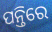
ପନ୍ତିରେ